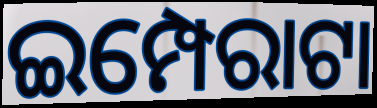
ଇମ୍ପେରାଟା